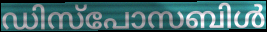
ഡിസ്പോസബിൾ